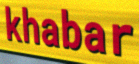
khabar